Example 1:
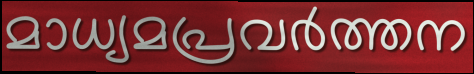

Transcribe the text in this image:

മാധ്യമപ്രവർത്തന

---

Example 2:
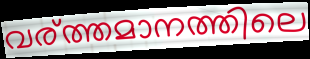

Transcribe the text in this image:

വര്ത്തമാനത്തിലെ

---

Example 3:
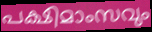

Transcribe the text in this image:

പക്ഷിമാംസവും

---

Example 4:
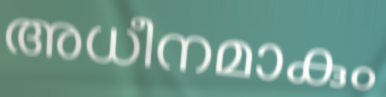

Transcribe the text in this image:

അധീനമാകും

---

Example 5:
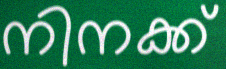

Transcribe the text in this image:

നിനക്ക്